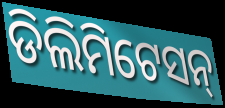
ଡିଲିମିଟେସନ୍